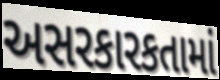
અસરકારકતામાં